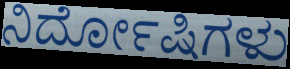
ನಿರ್ದೋಷಿಗಳು